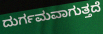
ದುರ್ಗಮವಾಗುತ್ತದೆ